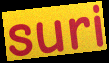
suri